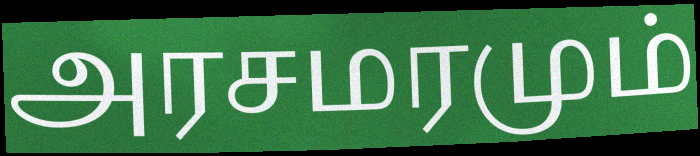
அரசமரமும்